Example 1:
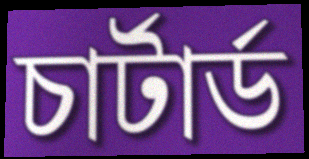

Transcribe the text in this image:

চার্টার্ড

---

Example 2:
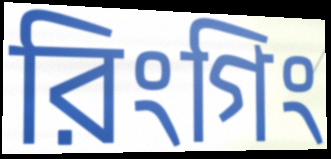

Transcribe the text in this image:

রিংগিং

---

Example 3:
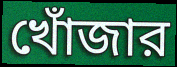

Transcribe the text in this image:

খোঁজার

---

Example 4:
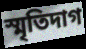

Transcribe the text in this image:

স্মৃতিদাগ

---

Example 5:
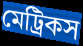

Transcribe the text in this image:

মেট্রিকস